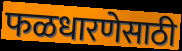
फळधारणेसाठी